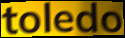
toledo